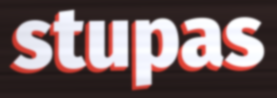
stupas